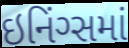
ઇનિંગ્સમાં